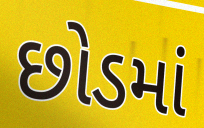
છોડમાં